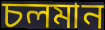
চলমান